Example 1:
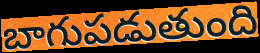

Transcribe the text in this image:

బాగుపడుతుంది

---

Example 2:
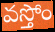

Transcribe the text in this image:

వస్తోం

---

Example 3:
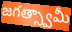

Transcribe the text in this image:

జగత్స్వామీ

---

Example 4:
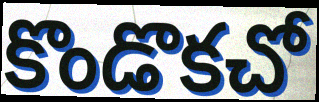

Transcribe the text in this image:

కొండొకచో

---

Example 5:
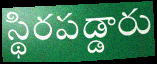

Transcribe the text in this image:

స్థిరపడ్డారు